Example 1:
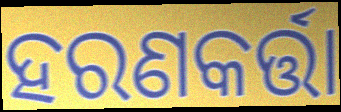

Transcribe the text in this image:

ହରଣକର୍ତ୍ତା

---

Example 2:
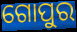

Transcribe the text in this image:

ଗୋପୁର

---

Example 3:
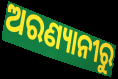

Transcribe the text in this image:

ଅରଣ୍ୟାନୀରୁ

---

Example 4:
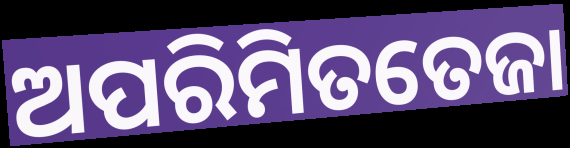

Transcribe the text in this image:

ଅପରିମିତତେଜା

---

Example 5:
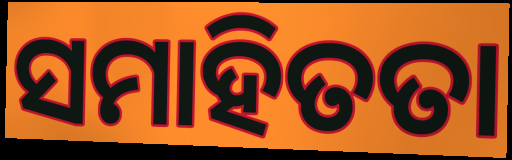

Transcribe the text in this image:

ସମାହିତତା